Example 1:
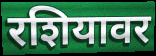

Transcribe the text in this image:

रशियावर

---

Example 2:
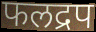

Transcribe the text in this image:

फलद्रप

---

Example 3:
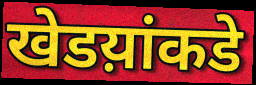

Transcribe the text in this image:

खेडय़ांकडे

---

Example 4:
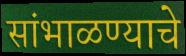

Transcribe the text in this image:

सांभाळण्याचे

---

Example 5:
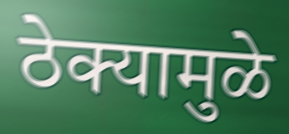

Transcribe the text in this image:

ठेक्यामुळे